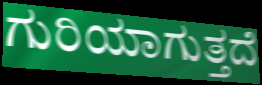
ಗುರಿಯಾಗುತ್ತದೆ